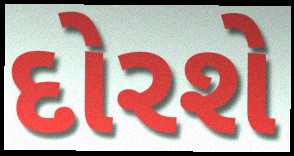
દોરશે